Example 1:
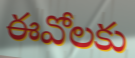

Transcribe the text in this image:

ఈవోలకు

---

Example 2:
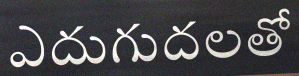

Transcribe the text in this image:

ఎదుగుదలతో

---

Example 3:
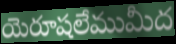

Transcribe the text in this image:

యెరూషలేముమీద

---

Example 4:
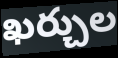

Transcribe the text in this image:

ఖర్చుల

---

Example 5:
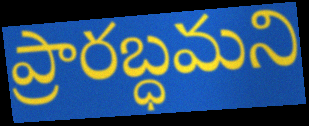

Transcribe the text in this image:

ప్రారబ్ధమని